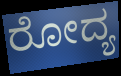
ರೋದ್ಯ